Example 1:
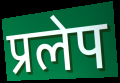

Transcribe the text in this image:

प्रलेप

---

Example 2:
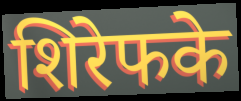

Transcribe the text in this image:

शिरेफके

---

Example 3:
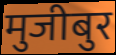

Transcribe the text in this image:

मुजीबुर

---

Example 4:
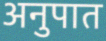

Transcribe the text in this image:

अनुपात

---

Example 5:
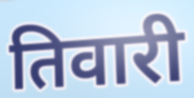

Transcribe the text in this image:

तिवारी